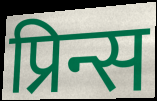
प्रिन्स